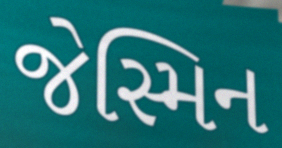
જેસ્મિન